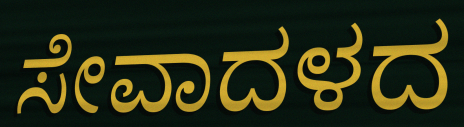
ಸೇವಾದಳದ